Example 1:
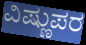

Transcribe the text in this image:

ವಿಷ್ಣುಪರ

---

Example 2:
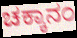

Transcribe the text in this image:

ಚಕ್ಕಾನಂ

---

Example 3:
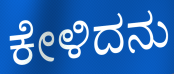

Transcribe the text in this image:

ಕೇಳಿದನು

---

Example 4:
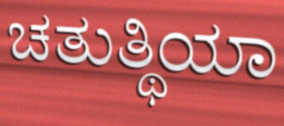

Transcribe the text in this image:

ಚತುತ್ಥಿಯಾ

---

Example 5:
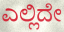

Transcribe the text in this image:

ಎಲ್ಲಿದೇ